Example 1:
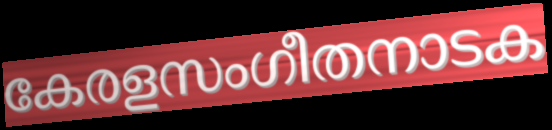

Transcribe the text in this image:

കേരളസംഗീതനാടക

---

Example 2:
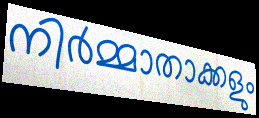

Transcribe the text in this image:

നിർമ്മാതാക്കളും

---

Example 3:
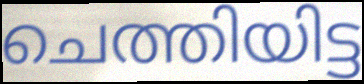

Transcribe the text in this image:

ചെത്തിയിട്ട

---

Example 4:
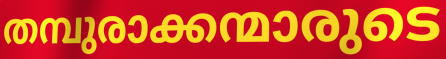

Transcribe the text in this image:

തമ്പുരാക്കന്മാരുടെ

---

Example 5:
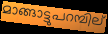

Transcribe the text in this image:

മാങ്ങാട്ടുപറമ്പില്